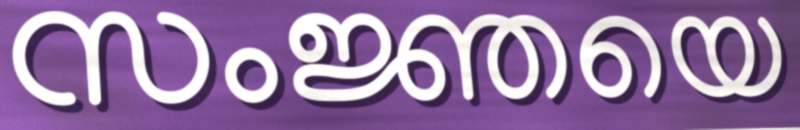
സംജ്ഞയെ